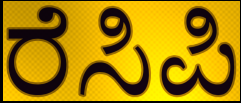
ರೆಸಿಪಿ